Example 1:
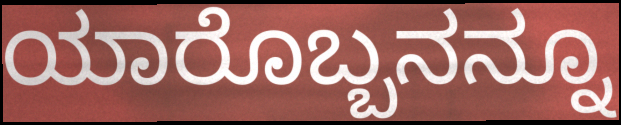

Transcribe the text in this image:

ಯಾರೊಬ್ಬನನ್ನೂ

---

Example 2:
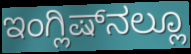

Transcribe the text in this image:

ಇಂಗ್ಲಿಷ್‌ನಲ್ಲೂ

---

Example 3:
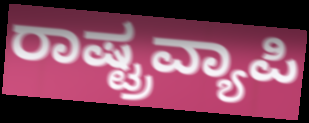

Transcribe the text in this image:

ರಾಷ್ಟ್ರವ್ಯಾಪಿ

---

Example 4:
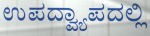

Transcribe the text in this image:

ಉಪದ್ವ್ಯಾಪದಲ್ಲಿ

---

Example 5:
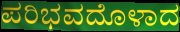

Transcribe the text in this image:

ಪರಿಭವದೊಳಾದ